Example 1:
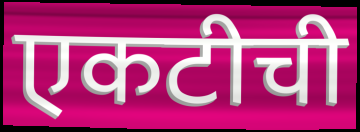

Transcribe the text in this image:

एकटीची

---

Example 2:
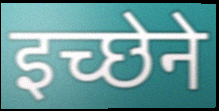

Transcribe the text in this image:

इच्छेने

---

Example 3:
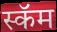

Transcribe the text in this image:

स्कॅम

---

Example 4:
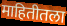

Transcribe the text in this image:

माहितीतला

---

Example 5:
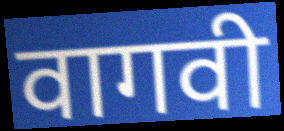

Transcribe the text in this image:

वागवी